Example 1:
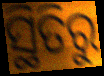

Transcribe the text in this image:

ସ୍ଥିତିରୁ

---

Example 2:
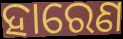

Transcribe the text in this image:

ହାରେଣ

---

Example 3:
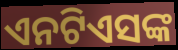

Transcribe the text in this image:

ଏନଟିଏସଙ୍କ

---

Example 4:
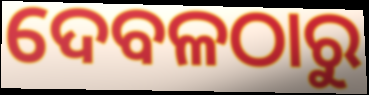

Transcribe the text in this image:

ଦେବଳଠାରୁ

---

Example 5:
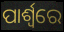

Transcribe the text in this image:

ପାର୍ଶ୍ୱରେ